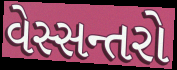
વેસ્સન્તરો